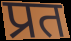
प्रत